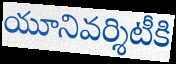
యూనివర్శిటీకి